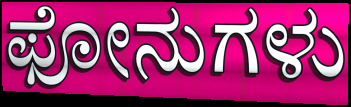
ಫೋನುಗಳು